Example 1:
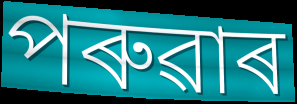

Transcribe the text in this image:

পৰুৱাৰ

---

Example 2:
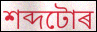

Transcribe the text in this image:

শব্দটোৰ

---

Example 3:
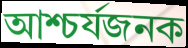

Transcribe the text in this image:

আশ্চৰ্যজনক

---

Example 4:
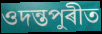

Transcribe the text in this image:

ওদন্তপুৰীত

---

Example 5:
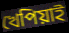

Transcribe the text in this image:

খেপিয়াই